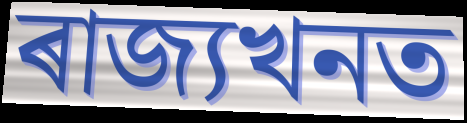
ৰাজ্যখনত